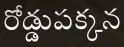
రోడ్డుపక్కన